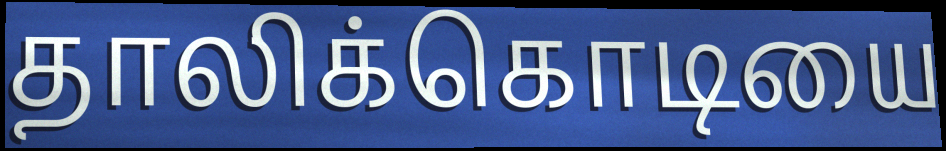
தாலிக்கொடியை